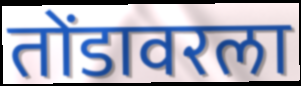
तोंडावरला